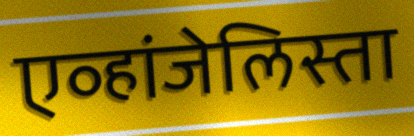
एव्हांजेलिस्ता